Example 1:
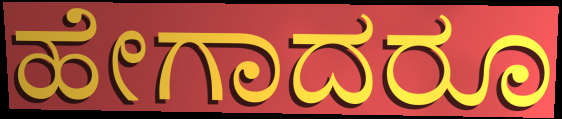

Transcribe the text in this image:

ಹೇಗಾದರೂ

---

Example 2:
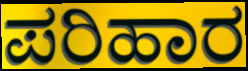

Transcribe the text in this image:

ಪರಿಹಾರ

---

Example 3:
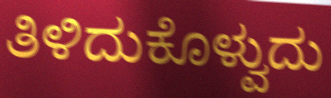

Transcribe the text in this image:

ತಿಳಿದುಕೊಳ್ವುದು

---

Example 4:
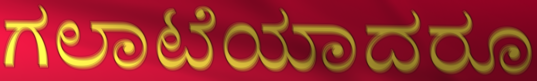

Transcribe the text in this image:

ಗಲಾಟೆಯಾದರೂ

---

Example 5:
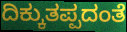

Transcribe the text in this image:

ದಿಕ್ಕುತಪ್ಪದಂತೆ